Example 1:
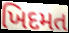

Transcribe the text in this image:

ખિદમત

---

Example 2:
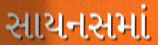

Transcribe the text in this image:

સાયનસમાં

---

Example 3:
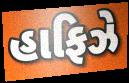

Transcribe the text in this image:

હાફિઝે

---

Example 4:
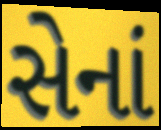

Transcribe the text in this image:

સેનાં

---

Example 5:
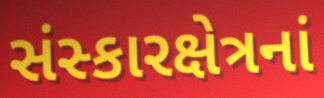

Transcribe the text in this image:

સંસ્કારક્ષેત્રનાં